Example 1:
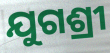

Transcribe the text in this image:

ଯୁଗଶ୍ରୀ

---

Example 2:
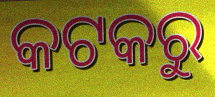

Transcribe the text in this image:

କଟକରୁ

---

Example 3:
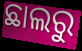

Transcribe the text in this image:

ଛାଲରୁ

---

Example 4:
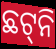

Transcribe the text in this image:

ଛଟ୍‌ନି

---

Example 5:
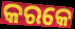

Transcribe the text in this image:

କରକେ